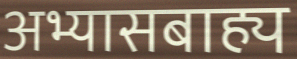
अभ्यासबाह्य